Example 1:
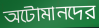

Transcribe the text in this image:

অটোমানদের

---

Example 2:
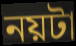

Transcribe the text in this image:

নয়টা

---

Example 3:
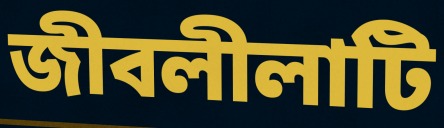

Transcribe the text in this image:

জীবলীলাটি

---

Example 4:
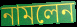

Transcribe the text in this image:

নামলেন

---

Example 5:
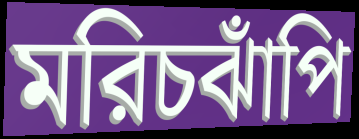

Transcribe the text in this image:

মরিচঝাঁপি